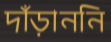
দাঁড়াননি